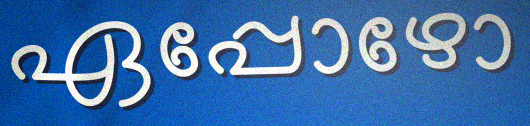
ഏപ്പോഴോ